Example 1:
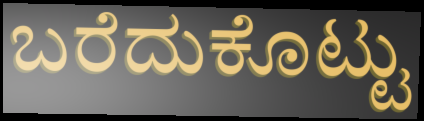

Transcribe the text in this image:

ಬರೆದುಕೊಟ್ಟು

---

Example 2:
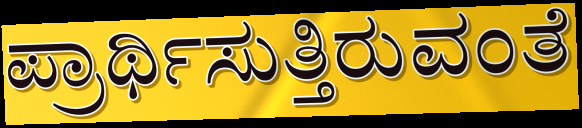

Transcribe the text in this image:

ಪ್ರಾರ್ಥಿಸುತ್ತಿರುವಂತೆ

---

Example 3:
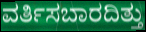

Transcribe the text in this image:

ವರ್ತಿಸಬಾರದಿತ್ತು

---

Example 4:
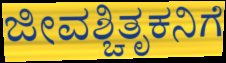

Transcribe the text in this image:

ಜೀವಶ್ಚಿತೃಕನಿಗೆ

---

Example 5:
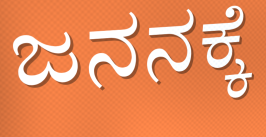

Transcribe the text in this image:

ಜನನಕ್ಕೆ